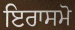
ਇਰਾਸਮੋ